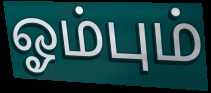
ஓம்பும்